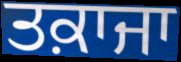
ਤਕ਼ਾਜਾ